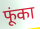
फूंका